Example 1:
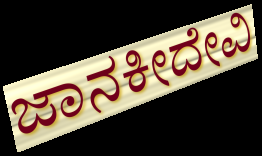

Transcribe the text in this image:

ಜಾನಕೀದೇವಿ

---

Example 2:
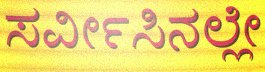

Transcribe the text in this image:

ಸರ್ವೀಸಿನಲ್ಲೇ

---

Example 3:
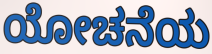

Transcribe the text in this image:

ಯೋಚನೆಯ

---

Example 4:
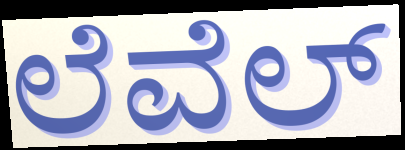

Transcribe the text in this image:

ಲೆವೆಲ್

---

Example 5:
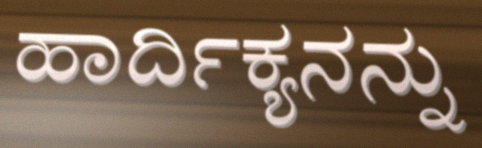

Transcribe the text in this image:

ಹಾರ್ದಿಕ್ಯನನ್ನು